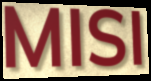
MISI